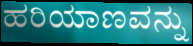
ಹರಿಯಾಣವನ್ನು